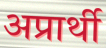
अप्रार्थी